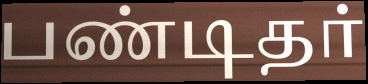
பண்டிதர்